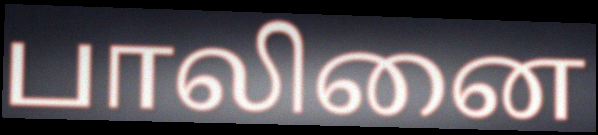
பாலினை